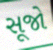
સૂજો